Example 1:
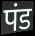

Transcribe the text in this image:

पंड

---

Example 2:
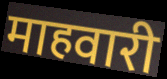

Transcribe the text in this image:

माहवारी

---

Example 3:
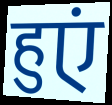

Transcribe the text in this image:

हुएं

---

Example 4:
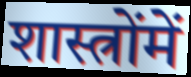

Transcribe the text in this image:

शास्त्रोंमें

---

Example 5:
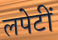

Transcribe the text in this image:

लपेटीं